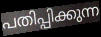
പതിപ്പിക്കുന്ന